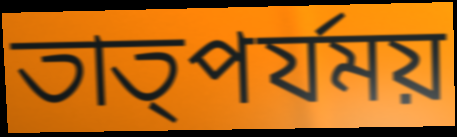
তাত্পর্যময়